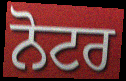
ਨੋਟਰ